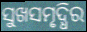
ସୁଖସମୃଦ୍ଧିର